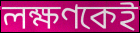
লক্ষণকেই